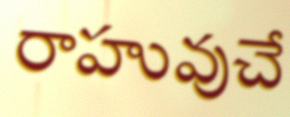
రాహువుచే